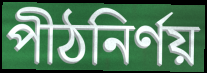
পীঠনির্ণয়